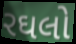
રઘલો